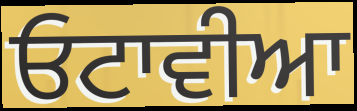
ਓਟਾਵੀਆ